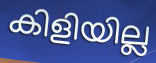
കിളിയില്ല